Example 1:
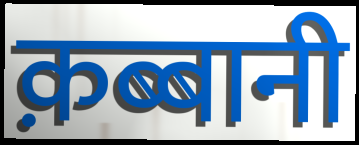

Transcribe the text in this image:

क़ब्बानी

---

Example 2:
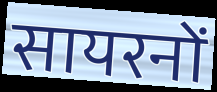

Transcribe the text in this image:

सायरनों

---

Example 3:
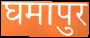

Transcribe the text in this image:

घमापुर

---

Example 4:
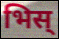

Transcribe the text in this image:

भिस्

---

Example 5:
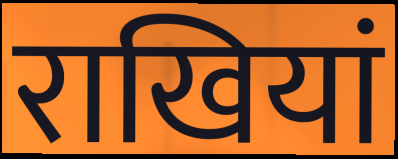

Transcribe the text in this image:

राखियां